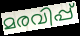
മരവിപ്പ്